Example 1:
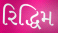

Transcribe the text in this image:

રિદ્ધિમ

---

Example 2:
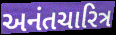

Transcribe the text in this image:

અનંતચારિત્ર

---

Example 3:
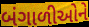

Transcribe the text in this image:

બંગાળીઓને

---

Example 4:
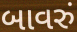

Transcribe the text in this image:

બાવરું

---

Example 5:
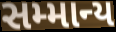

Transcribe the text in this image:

સમ્માન્ય